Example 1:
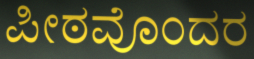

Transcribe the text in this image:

ಪೀಠವೊಂದರ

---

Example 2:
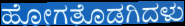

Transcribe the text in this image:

ಹೋಗತೊಡಗಿದಳು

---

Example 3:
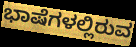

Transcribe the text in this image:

ಭಾಷೆಗಳಲ್ಲಿರುವ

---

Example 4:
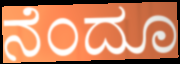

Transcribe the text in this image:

ನೆಂದೂ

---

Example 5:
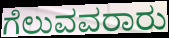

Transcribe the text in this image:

ಗೆಲುವವರಾರು